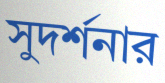
সুদর্শনার